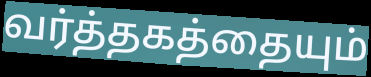
வர்த்தகத்தையும்